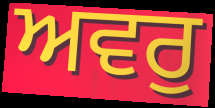
ਅਵਰੁ